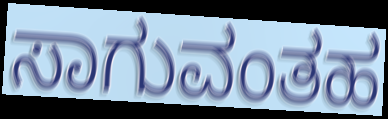
ಸಾಗುವಂತಹ